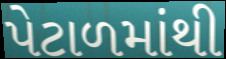
પેટાળમાંથી